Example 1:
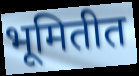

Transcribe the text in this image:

भूमितीत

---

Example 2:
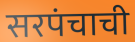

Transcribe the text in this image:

सरपंचाची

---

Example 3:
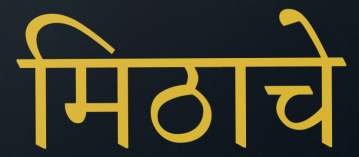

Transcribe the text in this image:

मिठाचे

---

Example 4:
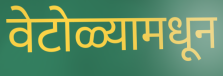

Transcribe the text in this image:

वेटोळ्यामधून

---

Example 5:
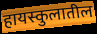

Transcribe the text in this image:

हायस्कुलातील